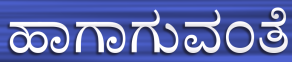
ಹಾಗಾಗುವಂತೆ